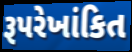
રૂપરેખાંકિત